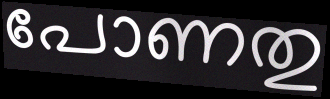
പോണതു